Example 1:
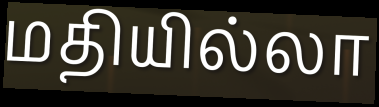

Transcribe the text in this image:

மதியில்லா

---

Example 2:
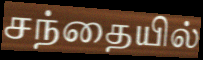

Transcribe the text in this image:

சந்தையில்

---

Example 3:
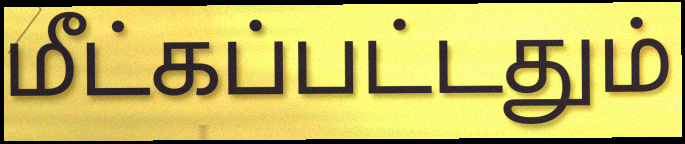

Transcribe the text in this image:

மீட்கப்பட்டதும்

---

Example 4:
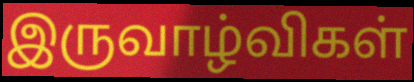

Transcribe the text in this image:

இருவாழ்விகள்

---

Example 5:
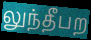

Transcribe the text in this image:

லுந்தீபற